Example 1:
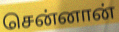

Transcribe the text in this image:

சென்னான்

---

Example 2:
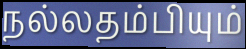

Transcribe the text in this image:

நல்லதம்பியும்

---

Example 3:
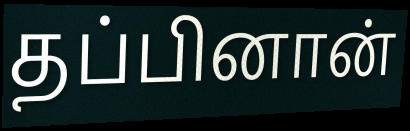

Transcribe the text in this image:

தப்பினான்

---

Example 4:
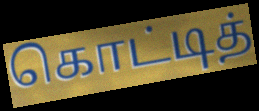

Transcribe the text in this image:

கொட்டித்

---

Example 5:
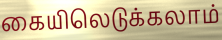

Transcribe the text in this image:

கையிலெடுக்கலாம்